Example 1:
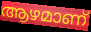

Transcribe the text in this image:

ആഴമാണ്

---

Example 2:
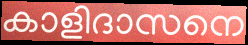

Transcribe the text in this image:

കാളിദാസനെ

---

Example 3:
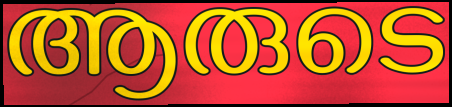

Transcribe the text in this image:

ആരുടെ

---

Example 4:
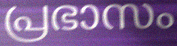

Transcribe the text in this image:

പ്രഭാസം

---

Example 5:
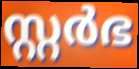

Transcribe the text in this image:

സ്റ്റർഭ